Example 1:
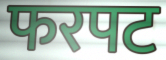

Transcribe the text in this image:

फरपट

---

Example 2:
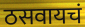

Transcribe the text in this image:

ठसवायचं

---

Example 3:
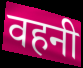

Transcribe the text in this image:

वहनी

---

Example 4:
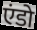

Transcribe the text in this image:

एंडो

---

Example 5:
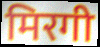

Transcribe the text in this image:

मिरगी